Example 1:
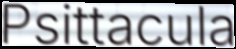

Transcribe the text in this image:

Psittacula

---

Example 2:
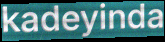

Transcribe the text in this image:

kadeyinda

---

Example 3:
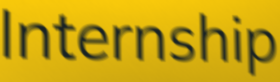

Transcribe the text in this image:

Internship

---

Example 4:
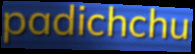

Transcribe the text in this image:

padichchu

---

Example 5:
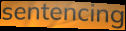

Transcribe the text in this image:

sentencing